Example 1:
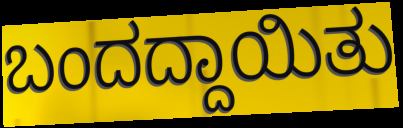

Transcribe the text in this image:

ಬಂದದ್ದಾಯಿತು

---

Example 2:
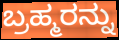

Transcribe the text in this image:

ಬ್ರಹ್ಮರನ್ನು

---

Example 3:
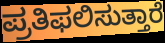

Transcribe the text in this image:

ಪ್ರತಿಫಲಿಸುತ್ತಾರೆ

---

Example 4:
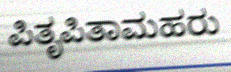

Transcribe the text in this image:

ಪಿತೃಪಿತಾಮಹರು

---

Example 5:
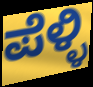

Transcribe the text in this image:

ಪೆಳ್ಳಿ